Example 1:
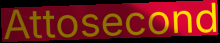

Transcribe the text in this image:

Attosecond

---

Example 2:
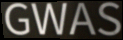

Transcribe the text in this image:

GWAS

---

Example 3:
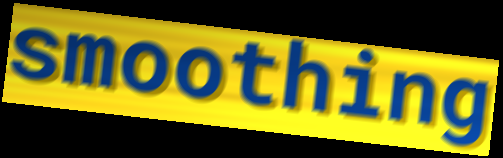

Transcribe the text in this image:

smoothing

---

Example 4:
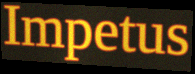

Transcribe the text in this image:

Impetus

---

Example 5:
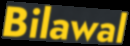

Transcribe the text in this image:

Bilawal